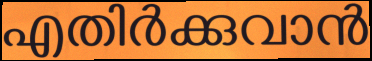
എതിർക്കുവാൻ